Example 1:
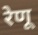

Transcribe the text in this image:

रेणू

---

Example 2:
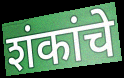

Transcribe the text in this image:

शंकांचे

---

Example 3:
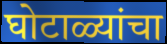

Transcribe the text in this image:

घोटाळ्यांचा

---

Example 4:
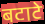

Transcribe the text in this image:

बटाटे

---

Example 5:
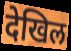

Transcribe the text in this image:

देखिल